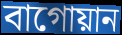
বাগোয়ান